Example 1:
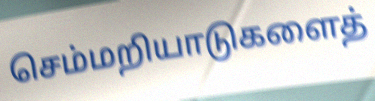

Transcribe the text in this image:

செம்மறியாடுகளைத்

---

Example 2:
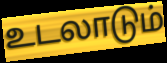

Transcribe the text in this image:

உடலாடும்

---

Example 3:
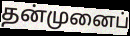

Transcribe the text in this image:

தன்முனைப்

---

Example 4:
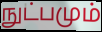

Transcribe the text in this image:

நுட்பமும்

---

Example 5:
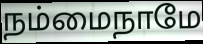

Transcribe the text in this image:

நம்மைநாமே